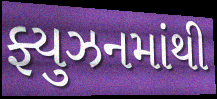
ફ્યુઝનમાંથી